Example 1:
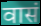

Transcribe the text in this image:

वासं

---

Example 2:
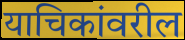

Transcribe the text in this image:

याचिकांवरील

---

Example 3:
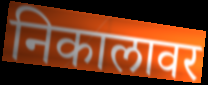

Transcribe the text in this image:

निकालावर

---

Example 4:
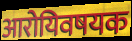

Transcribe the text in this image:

आरोयिवषयक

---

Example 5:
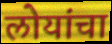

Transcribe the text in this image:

लोयांचा